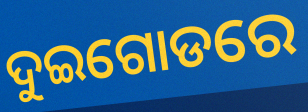
ଦୁଇଗୋଡରେ